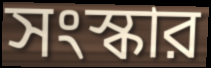
সংস্কার